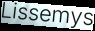
Lissemys